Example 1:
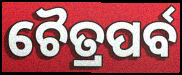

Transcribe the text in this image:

ଚୈତ୍ରପର୍ବ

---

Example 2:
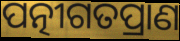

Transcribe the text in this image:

ପତ୍ନୀଗତପ୍ରାଣ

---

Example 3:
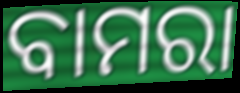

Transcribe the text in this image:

ବାମରା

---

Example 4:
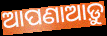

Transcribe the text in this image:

ଆପଣାଆଡ଼ୁ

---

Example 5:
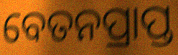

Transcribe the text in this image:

ବେତନପ୍ରାପ୍ତ